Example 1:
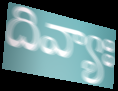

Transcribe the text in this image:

దివ్యాః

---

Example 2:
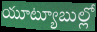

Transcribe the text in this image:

యూట్యూబుల్లో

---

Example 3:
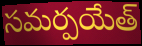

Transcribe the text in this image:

సమర్పయేత్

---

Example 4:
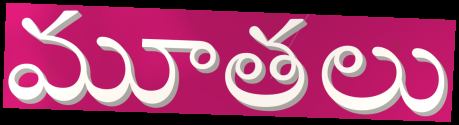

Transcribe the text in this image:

మూతలు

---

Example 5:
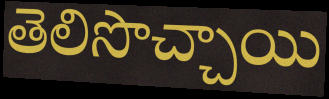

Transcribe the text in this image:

తెలిసొచ్చాయి